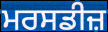
ਮਰਸਡੀਜ਼